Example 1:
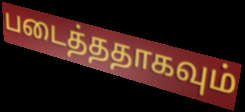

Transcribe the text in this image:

படைத்ததாகவும்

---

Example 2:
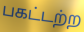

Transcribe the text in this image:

பகட்டற்ற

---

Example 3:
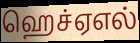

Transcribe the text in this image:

ஹெச்ஏஎல்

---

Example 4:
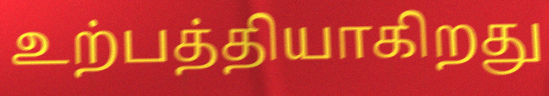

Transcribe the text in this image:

உற்பத்தியாகிறது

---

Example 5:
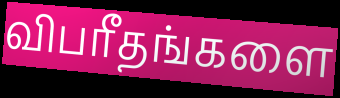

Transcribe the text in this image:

விபரீதங்களை